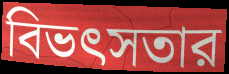
বিভৎসতার